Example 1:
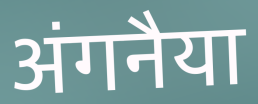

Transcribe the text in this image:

अंगनैया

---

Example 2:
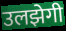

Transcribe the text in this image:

उलझेगी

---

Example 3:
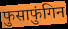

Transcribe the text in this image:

फुसाफुंगिन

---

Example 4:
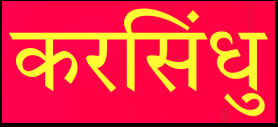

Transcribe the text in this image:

करसिंधु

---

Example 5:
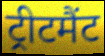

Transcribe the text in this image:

ट्रीटमैंट